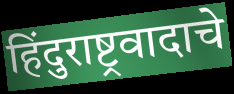
हिंदुराष्ट्रवादाचे